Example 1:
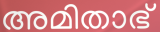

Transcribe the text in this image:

അമിതാഭ്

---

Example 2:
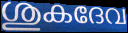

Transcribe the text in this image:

ശുകദേവ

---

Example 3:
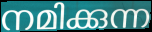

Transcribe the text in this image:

നമിക്കുന്ന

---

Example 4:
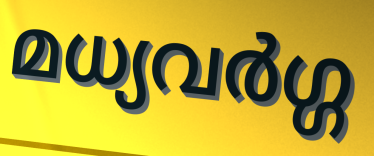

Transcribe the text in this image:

മധ്യവർഗ്ഗ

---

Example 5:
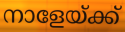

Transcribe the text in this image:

നാളേയ്ക്ക്